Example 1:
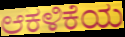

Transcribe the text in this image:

ಆಕಳಿಕೆಯ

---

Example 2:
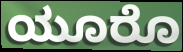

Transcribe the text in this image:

ಯೂರೊ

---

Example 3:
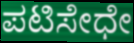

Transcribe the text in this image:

ಪಟಿಸೇಧೇ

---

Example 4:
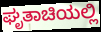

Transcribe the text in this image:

ಘೃತಾಚಿಯಲ್ಲಿ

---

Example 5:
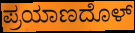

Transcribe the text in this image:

ಪ್ರಯಾಣದೊಳ್